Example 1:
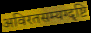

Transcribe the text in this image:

अविरतसम्यग्दृष्टि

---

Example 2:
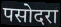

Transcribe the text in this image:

पसोदरा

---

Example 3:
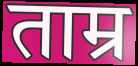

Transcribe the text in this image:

ताम्र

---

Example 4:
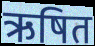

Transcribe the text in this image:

ऋषित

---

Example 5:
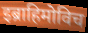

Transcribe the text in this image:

इब्राहिमोविच